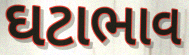
ઘટાભાવ